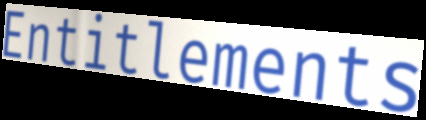
Entitlements